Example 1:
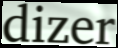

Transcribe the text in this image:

dizer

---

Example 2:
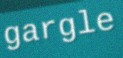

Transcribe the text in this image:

gargle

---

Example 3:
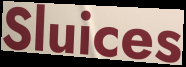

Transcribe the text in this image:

Sluices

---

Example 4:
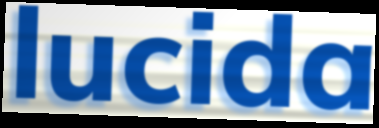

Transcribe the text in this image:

lucida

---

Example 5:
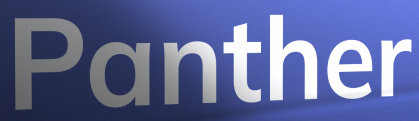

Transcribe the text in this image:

Panther